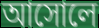
আসোলে